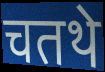
चतथे